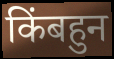
किंबहुन